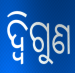
ଦ୍ୱିଗୁଣ